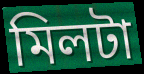
মিলটা